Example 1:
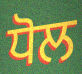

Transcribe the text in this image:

ਧੋਲ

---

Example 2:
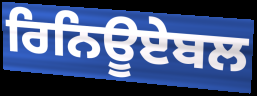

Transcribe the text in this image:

ਰਿਨਿਊਏਬਲ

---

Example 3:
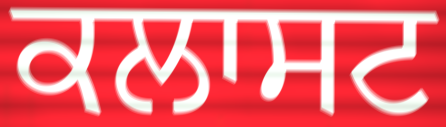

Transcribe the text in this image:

ਕਲਾਸਟ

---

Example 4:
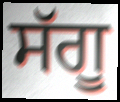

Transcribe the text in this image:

ਸੱਗੂ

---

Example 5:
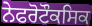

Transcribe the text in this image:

ਨੇਫਰੋਟੌਕਸਿਕ